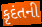
કૃદંતની